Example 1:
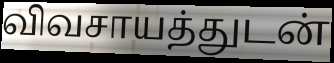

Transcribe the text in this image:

விவசாயத்துடன்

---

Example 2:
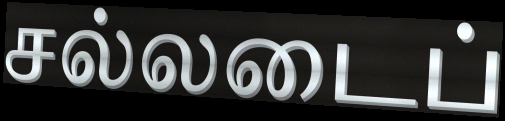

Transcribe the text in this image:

சல்லடைப்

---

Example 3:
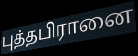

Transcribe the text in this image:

புத்தபிரானை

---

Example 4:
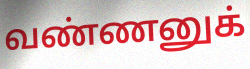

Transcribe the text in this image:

வண்ணனுக்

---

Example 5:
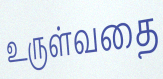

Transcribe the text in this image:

உருள்வதை